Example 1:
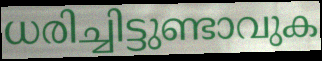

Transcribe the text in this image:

ധരിച്ചിട്ടുണ്ടാവുക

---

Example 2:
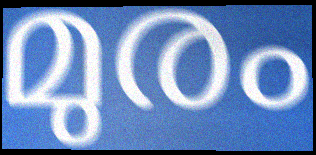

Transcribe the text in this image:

മുരം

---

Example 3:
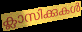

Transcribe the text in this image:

ക്ലാസിക്കുകൾ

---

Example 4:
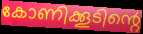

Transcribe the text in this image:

കോണിക്കൂടിന്റെ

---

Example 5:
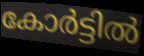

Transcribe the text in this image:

കോർട്ടിൽ